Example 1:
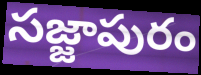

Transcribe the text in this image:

సజ్జాపురం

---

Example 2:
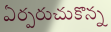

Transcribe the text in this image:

ఏర్పరుచుకొన్న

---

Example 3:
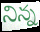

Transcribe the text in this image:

నిన్న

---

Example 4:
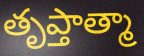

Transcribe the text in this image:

తృప్తాత్మా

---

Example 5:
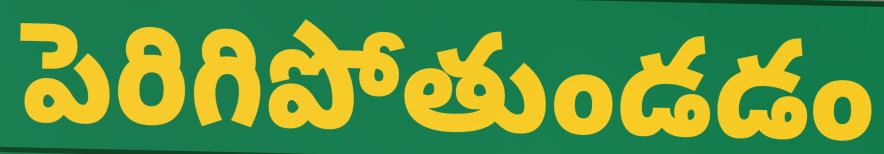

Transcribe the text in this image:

పెరిగిపోతుండడం